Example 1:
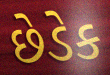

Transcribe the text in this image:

છેડેક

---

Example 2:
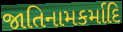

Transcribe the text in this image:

જાતિનામકર્માદિ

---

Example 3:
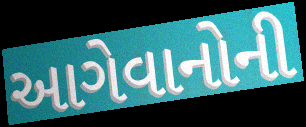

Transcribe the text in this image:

આગેવાનોની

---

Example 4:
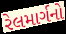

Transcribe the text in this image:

રેલમાર્ગનો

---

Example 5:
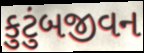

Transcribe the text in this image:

કુટુંબજીવન